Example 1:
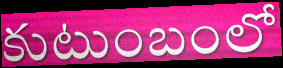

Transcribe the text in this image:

కుటుంబంలో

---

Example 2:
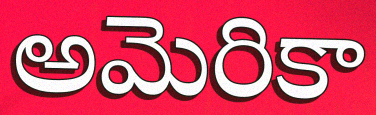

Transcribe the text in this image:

అమెరికా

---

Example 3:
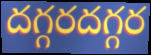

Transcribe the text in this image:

దగ్గరదగ్గర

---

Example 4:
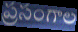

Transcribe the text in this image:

ప్రసంగాల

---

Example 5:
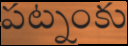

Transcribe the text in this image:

పట్నంకు